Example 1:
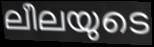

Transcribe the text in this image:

ലീലയുടെ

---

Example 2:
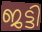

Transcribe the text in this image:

ജട്ടി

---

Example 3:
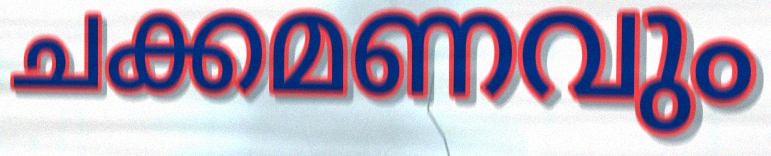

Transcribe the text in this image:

ചക്കമണവും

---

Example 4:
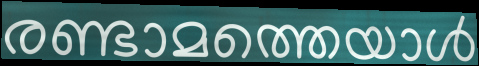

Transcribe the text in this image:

രണ്ടാമത്തെയാൾ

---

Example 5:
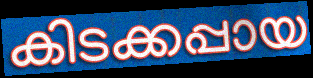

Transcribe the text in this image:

കിടക്കപ്പായ